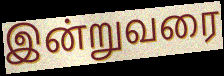
இன்றுவரை